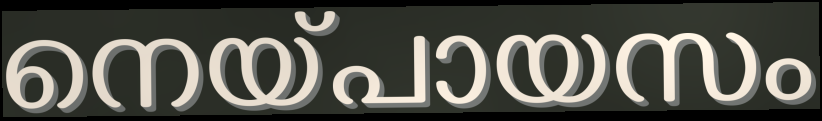
നെയ്പായസം